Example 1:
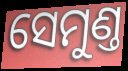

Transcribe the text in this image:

ସେମୁଣ୍ତ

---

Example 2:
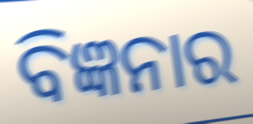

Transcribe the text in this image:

ବିଜ୍ଞନାର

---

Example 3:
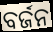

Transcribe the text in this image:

ବର୍ଜନ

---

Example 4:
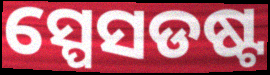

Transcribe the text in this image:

ସ୍ପେସଡଷ୍ଟ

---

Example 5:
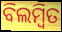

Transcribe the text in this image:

ବିଲମ୍ବିତ